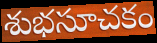
శుభసూచకం